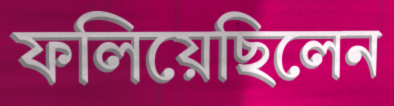
ফলিয়েছিলেন